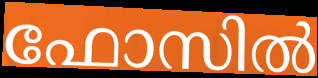
ഫോസിൽ